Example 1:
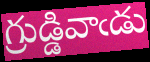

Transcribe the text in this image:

గ్రుడ్డివాఁడు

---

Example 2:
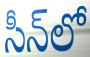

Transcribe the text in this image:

సీన్‌లో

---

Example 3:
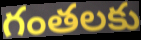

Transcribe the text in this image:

గంతలకు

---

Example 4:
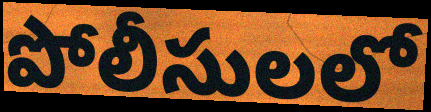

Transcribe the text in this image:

పోలీసులలో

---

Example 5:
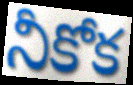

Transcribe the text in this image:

నీకోక